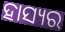
ହାସ୍ୟର